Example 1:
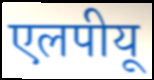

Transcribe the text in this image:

एलपीयू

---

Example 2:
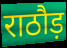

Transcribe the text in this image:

राठौड़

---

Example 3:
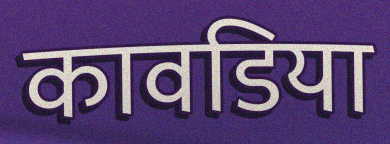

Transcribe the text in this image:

कावडिया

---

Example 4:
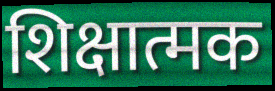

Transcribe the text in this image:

शिक्षात्मक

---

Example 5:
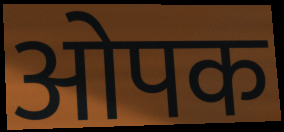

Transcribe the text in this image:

ओपक